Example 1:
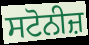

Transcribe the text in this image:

ਸਟੋਨੀਜ਼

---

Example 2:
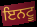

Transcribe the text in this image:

ਇਨਟੂ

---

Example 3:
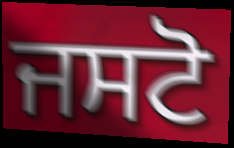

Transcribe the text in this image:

ਜਸਟੋ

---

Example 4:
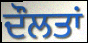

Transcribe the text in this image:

ਦੌਲਤਾਂ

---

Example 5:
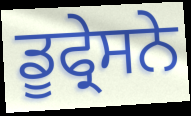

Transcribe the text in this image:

ਡੂਫ੍ਰੇਸਨੇ